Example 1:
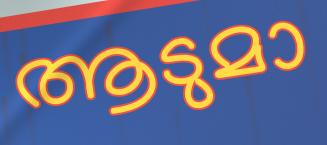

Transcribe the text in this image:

ആടുമാ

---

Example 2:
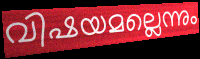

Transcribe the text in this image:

വിഷയമല്ലെന്നും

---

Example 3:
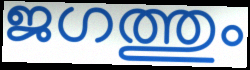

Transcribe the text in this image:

ജഗത്തും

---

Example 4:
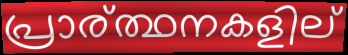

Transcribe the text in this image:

പ്രാര്ത്ഥനകളില്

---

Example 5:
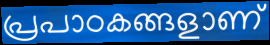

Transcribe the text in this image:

പ്രപാഠകങ്ങളാണ്